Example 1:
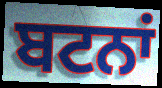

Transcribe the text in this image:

ਬਟਨਾਂ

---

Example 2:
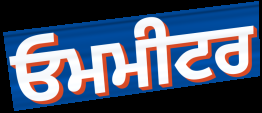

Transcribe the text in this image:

ਓਮਮੀਟਰ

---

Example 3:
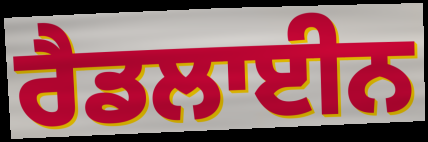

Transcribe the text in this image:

ਰੈਡਲਾਈਨ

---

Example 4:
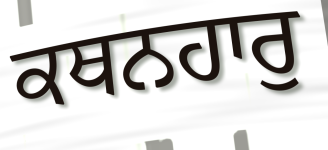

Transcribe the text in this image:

ਕਥਨਹਾਰੁ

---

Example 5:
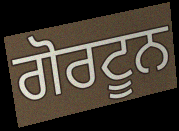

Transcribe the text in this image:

ਗੋਰਟੂਨ